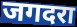
जगदरा